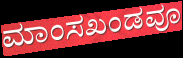
ಮಾಂಸಖಂಡವೂ